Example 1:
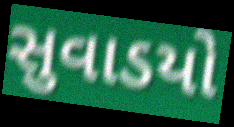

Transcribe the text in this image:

સુવાડયો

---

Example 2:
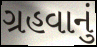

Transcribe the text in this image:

ગ્રહવાનું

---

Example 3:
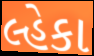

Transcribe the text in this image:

લ્હેકા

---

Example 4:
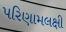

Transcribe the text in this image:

પરિણામલક્ષી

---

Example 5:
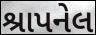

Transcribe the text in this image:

શ્રાપનેલ